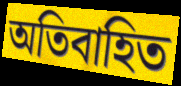
অতিবাহিত